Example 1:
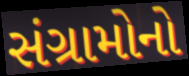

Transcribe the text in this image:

સંગ્રામોનો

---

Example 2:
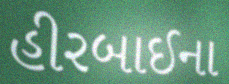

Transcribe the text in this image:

હીરબાઈના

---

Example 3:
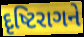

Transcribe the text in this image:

દૃષ્ટિરાગને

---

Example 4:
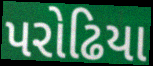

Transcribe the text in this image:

પરોઢિયા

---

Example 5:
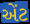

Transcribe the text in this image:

એંટ